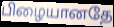
பிழையானதே